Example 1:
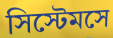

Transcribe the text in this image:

সিস্টেমসে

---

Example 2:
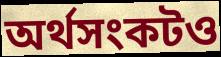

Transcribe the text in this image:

অর্থসংকটও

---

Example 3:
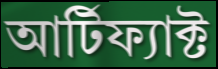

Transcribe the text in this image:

আর্টিফ্যাক্ট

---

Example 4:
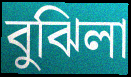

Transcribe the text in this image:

বুঝিলা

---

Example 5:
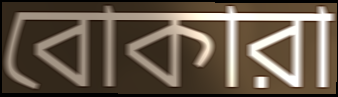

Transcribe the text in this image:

বোকারা